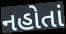
નહોતાં